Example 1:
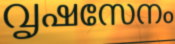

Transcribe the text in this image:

വൃഷസേനം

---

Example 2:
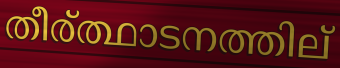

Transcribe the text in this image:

തീര്ത്ഥാടനത്തില്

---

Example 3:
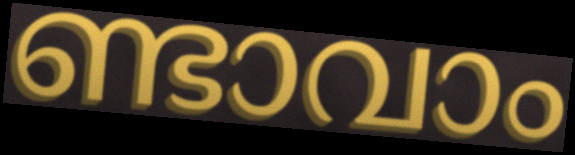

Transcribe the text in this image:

ണ്ടാവാം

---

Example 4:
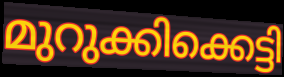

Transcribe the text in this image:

മുറുക്കിക്കെട്ടി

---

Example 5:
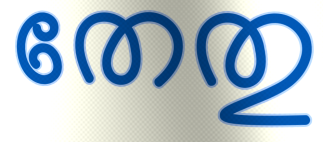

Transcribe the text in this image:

തേതു